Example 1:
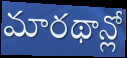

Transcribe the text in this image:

మారథాన్లో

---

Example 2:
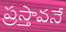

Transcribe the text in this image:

ప్రస్తావనే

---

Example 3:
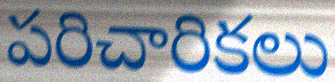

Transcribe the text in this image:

పరిచారికలు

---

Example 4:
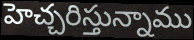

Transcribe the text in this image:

హెచ్చరిస్తున్నాము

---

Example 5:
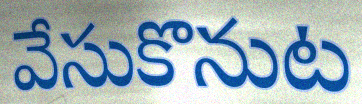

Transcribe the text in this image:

వేసుకొనుట